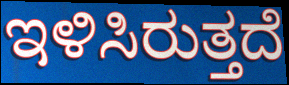
ಇಳಿಸಿರುತ್ತದೆ